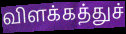
விளக்கத்துச்